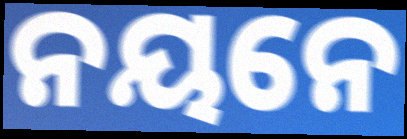
ନୟନେ